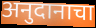
अनुदानाचा